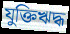
যুক্তিঋদ্ধ